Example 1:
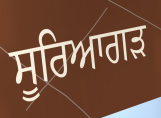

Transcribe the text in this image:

ਸੂਰਿਆਗੜ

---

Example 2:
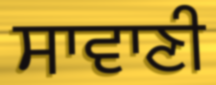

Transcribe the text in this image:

ਸਾਵਾਣੀ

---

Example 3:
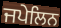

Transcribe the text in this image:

ਜਪੇਲਿਨ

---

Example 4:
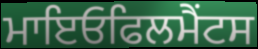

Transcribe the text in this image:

ਮਾਇਓਫਿਲਮੈਂਟਸ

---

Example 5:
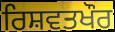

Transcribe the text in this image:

ਰਿਸ਼ਵਤਖੌਰ